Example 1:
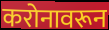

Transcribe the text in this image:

करोनावरून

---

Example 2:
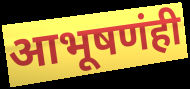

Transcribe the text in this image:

आभूषणंही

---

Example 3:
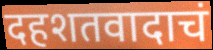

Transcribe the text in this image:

दहशतवादाचं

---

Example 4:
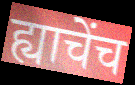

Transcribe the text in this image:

ह्याचेंच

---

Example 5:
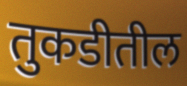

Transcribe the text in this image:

तुकडीतील